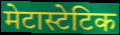
मेटास्टेटिक